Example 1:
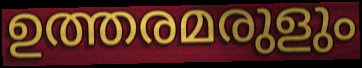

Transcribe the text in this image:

ഉത്തരമരുളും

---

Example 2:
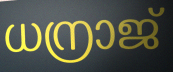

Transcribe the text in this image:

ധന്രാജ്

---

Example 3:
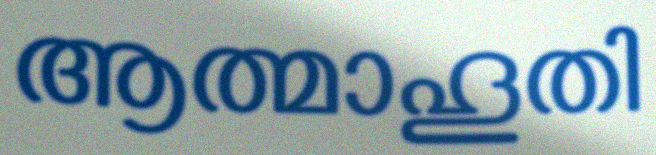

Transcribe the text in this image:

ആത്മാഹൂതി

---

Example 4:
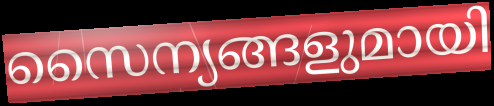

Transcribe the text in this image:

സൈന്യങ്ങളുമായി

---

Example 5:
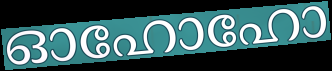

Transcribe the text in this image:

ഓഹോഹോ